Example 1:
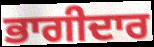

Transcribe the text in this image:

ਭਾਗੀਦਾਰ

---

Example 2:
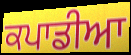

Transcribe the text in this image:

ਕਪਾਡੀਆ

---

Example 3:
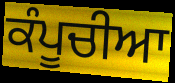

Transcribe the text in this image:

ਕੰਪੂਚੀਆ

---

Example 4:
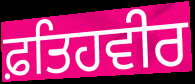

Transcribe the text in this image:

ਫ਼ਤਿਹਵੀਰ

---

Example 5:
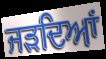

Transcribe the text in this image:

ਜੜਦਿਆਂ